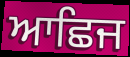
ਆਛਿਜ